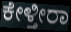
ಕೇಳ್ತೀರಾ